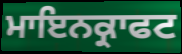
ਮਾਇਨਕ੍ਰਾਫਟ